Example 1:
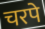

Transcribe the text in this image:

चरपे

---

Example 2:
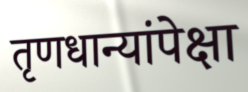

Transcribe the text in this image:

तृणधान्यांपेक्षा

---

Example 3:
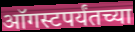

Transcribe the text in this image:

ऑगस्टपर्यंतच्या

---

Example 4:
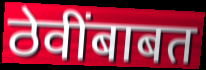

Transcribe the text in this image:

ठेवींबाबत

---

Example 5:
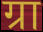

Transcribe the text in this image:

ग्रा